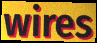
wires